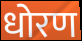
धोरण